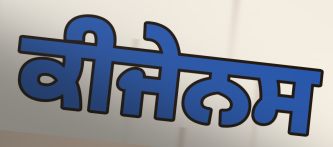
ਕੀਜੇਨਸ